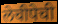
लेचीपेची